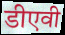
डीएवी